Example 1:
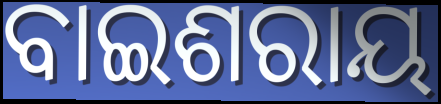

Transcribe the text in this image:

ବାଇଶରାୟ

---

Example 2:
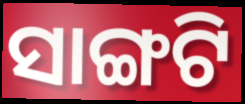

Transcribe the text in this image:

ସାଙ୍ଗଟି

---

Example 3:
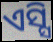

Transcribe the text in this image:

ଏସ୍ସି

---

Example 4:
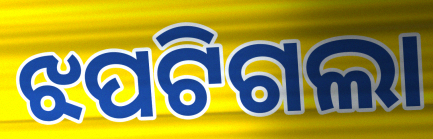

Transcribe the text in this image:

ଝପଟିଗଲା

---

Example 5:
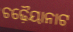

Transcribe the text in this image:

ଚଢ଼ୈୟାନାଟ